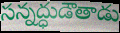
సన్నద్ధుడౌతాడు